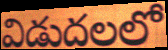
విడుదలలో